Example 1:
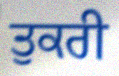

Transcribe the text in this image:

ਤੁਕਰੀ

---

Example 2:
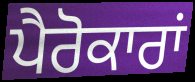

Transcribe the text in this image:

ਪੈਰੋਕਾਰਾਂ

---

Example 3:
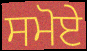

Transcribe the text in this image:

ਸਮੋਏ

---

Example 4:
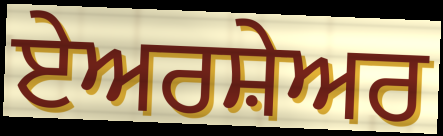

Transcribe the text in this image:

ਏਅਰਸ਼ੇਅਰ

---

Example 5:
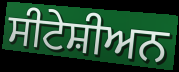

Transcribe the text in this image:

ਸੀਟੇਸ਼ੀਅਨ